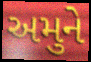
અમુને